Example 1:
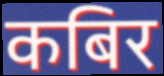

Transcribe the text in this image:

कबिर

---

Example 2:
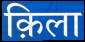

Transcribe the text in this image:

क़िला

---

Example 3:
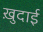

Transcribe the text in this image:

ख़ुदाई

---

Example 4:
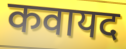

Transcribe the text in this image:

कवायद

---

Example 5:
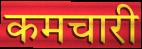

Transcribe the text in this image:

कमचारी